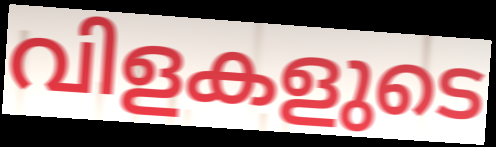
വിളകളുടെ